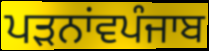
ਪੜਨਾਂਵਪੰਜਾਬ